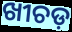
ଖୀଚଡ଼